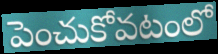
పెంచుకోవటంలో